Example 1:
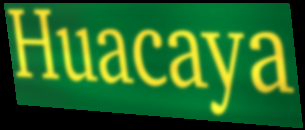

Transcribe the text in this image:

Huacaya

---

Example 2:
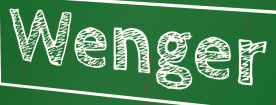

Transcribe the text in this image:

Wenger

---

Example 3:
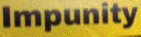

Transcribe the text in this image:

Impunity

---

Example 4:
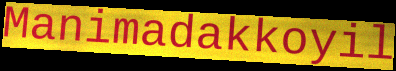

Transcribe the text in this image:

Manimadakkoyil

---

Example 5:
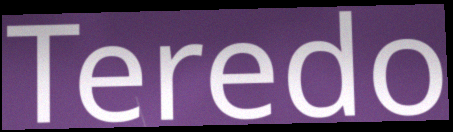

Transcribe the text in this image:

Teredo